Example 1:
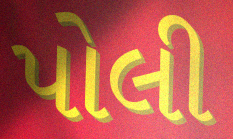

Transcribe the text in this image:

પોલી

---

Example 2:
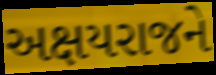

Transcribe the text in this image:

અક્ષયરાજને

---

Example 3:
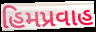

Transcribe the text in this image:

હિમપ્રવાહ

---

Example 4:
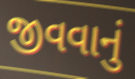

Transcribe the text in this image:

જીવવાનું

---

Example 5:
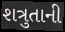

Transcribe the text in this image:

શત્રુતાની